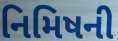
નિમિષની